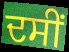
ਦਸੀਂ